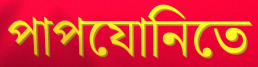
পাপযোনিতে